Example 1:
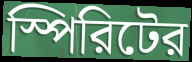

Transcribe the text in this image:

স্পিরিটের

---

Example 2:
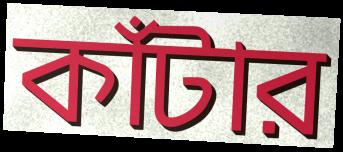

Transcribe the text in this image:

কাঁটার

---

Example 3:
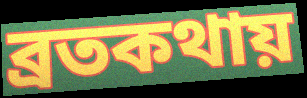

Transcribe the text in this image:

ব্রতকথায়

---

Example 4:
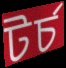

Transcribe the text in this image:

টর্চ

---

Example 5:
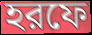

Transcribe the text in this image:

হরফে